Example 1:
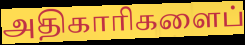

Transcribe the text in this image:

அதிகாரிகளைப்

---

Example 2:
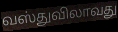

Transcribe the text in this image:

வஸ்துவிலாவது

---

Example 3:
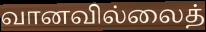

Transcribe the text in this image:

வானவில்லைத்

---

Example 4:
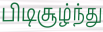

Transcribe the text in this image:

பிடிசூழ்ந்து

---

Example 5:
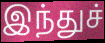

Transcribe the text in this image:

இந்துச்